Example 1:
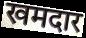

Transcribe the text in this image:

खमदार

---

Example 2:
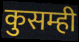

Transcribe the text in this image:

कुसम्ही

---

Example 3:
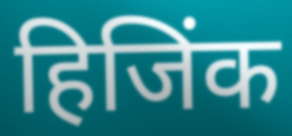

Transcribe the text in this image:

हिजिंक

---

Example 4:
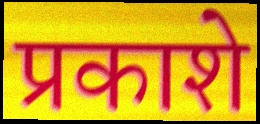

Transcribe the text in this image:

प्रकाशे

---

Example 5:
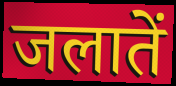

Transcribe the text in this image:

जलातें